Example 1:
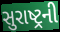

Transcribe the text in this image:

સુરાષ્ટ્રની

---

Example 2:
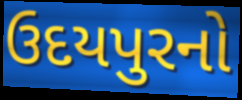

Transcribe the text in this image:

ઉદયપુરનો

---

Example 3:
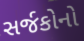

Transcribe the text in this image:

સર્જકોનો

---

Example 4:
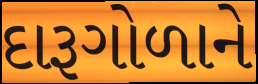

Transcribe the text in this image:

દારૂગોળાને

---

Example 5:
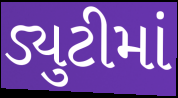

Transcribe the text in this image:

ડ્યુટીમાં